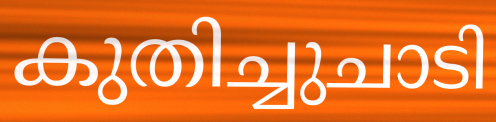
കുതിച്ചുചാടി